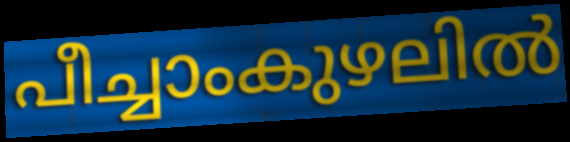
പീച്ചാംകുഴലിൽ